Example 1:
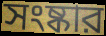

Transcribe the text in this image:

সংষ্কার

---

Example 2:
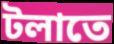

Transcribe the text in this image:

টলাতে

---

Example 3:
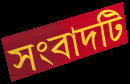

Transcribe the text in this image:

সংবাদটি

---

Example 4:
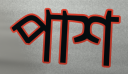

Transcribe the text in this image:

পাশ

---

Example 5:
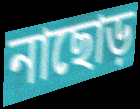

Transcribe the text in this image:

নাছোড়